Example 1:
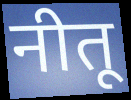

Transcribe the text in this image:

नीतू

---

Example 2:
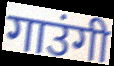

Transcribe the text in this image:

गाउंगी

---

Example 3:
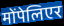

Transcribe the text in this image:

मोंपेलिएर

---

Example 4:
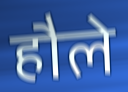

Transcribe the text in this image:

हौले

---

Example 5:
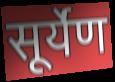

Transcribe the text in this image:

सूर्ये॑ण